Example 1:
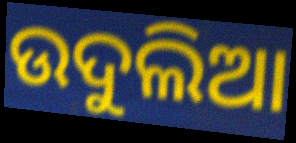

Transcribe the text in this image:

ଉଦୁଲିଆ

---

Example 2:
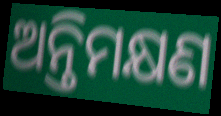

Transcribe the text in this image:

ଅନ୍ତିମକ୍ଷଣ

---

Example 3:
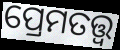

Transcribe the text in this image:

ପ୍ରେମତତ୍ତ୍ୱ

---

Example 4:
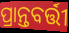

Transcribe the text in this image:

ପ୍ରାନ୍ତବର୍ତ୍ତୀ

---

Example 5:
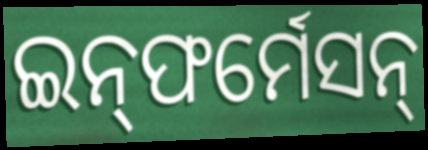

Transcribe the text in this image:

ଇନ୍‍ଫର୍ମେସନ୍